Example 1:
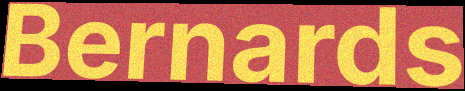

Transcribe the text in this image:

Bernards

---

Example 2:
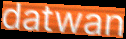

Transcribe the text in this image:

datwan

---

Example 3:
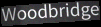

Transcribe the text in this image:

Woodbridge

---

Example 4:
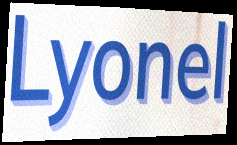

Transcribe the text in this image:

Lyonel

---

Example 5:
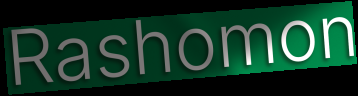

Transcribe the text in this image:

Rashomon